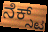
ನೆಕ್ಸ್ಟ್